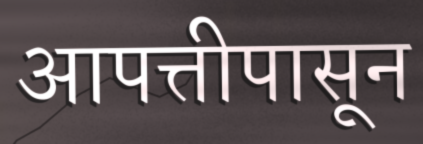
आपत्तीपासून